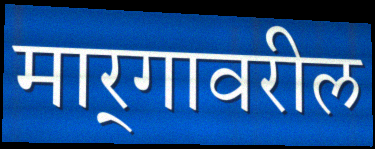
मार्गावरील